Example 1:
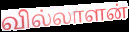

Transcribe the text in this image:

வில்லாளன்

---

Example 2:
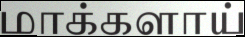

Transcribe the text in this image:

மாக்களாய்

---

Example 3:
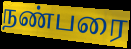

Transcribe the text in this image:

நண்பரை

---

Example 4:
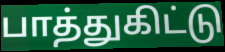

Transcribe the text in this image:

பாத்துகிட்டு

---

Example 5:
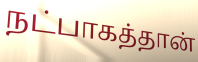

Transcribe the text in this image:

நட்பாகத்தான்